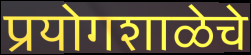
प्रयोगशाळेचे